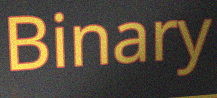
Binary